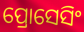
ପ୍ରୋସେସିଂ